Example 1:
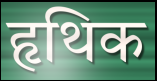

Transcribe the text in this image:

हृथिक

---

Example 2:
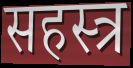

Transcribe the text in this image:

सहस्‍त्र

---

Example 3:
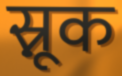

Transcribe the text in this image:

स्नूक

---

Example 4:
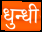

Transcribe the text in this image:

धुन्धी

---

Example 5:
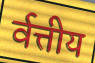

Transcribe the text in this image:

र्वत्तीय